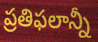
ప్రతిఫలాన్నీ